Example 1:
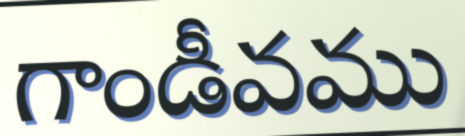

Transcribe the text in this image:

గాండీవము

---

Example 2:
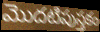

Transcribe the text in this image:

మొదటిపుస్తకం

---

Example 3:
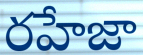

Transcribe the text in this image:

రహేజా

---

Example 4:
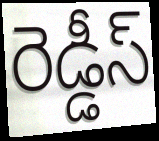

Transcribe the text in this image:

రెడ్డీస్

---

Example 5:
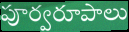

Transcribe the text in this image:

పూర్వరూపాలు